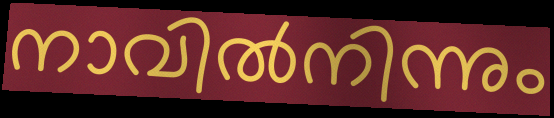
നാവിൽനിന്നും